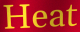
Heat